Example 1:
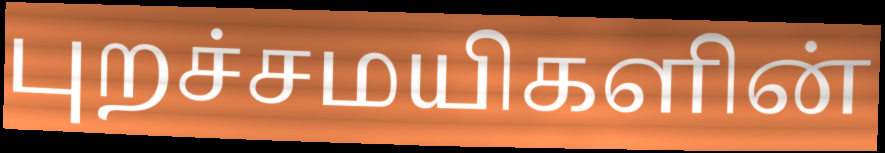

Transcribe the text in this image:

புறச்சமயிகளின்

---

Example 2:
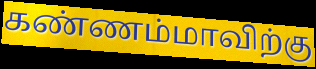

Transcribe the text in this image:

கண்ணம்மாவிற்கு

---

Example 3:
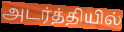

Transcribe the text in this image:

அடர்த்தியில்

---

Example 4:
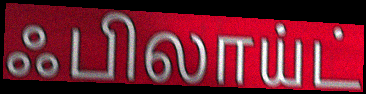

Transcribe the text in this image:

ஃபிலாய்ட்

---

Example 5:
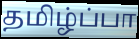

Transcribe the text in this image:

தமிழ்ப்பா